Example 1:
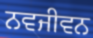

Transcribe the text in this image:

ਨਵਜੀਵਨ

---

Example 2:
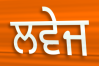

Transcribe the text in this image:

ਲਵੇਜ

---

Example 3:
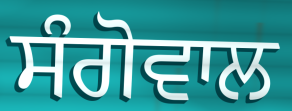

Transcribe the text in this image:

ਸੰਗੋਵਾਲ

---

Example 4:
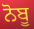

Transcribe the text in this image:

ਨੋਬੂ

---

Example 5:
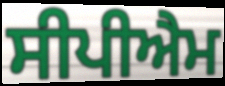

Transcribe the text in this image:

ਸੀਪੀਐਮ